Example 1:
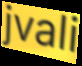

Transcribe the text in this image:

jvali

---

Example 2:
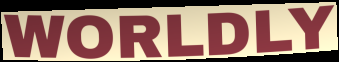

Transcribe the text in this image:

WORLDLY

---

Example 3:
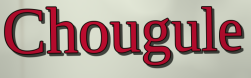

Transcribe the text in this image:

Chougule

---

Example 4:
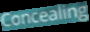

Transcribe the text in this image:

Concealing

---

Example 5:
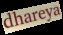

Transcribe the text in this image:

dhareya